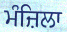
ਮੰਜ਼ਿਲਾ